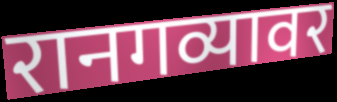
रानगव्यावर